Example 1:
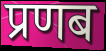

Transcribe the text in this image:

प्रणब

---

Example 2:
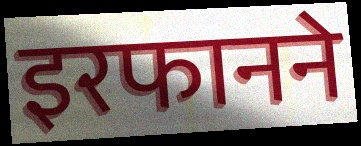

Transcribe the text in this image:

इरफानने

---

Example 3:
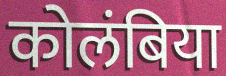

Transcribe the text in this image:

कोलंबिया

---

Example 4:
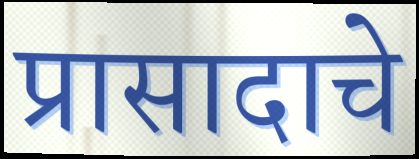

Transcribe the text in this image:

प्रासादाचे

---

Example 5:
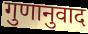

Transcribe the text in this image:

गुणानुवाद